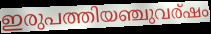
ഇരുപത്തിയഞ്ചുവര്ഷം